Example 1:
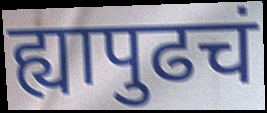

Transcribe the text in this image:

ह्यापुढचं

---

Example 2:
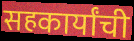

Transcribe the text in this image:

सहकार्यांची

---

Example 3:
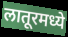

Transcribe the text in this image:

लातूरमध्ये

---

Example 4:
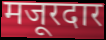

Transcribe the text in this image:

मजूरदार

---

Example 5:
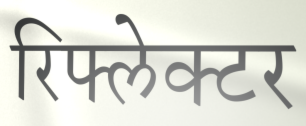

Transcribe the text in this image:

रिफ्लेक्टर